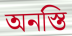
অনস্তি